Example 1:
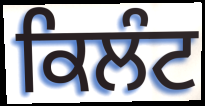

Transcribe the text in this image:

ਕਿਲੰਟ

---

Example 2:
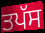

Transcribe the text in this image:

ਤਪੱਸ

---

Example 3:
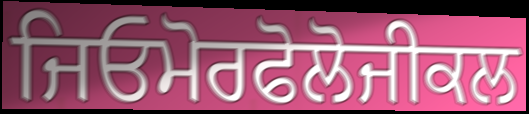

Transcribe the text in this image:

ਜਿਓਮੋਰਫੋਲੋਜੀਕਲ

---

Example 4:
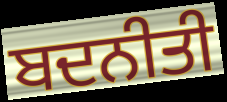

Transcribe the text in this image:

ਬਦਨੀਤੀ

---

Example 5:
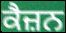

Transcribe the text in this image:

ਕੈਜ਼ਨ